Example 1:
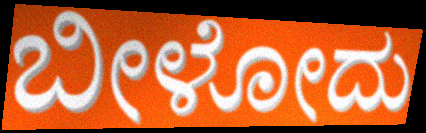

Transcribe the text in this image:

ಬೀಳೋದು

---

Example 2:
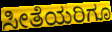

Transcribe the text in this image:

ಸೀತೆಯರಿಗೂ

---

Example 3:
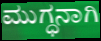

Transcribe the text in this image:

ಮುಗ್ಧನಾಗಿ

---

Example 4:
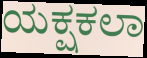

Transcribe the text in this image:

ಯಕ್ಷಕಲಾ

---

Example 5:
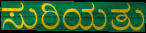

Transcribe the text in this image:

ಸುರಿಯತು